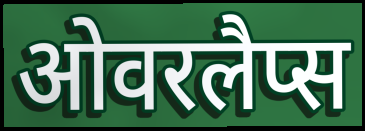
ओवरलैप्स